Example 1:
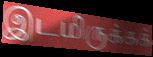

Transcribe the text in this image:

இடமிருக்கக்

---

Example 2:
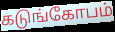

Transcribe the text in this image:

கடுங்கோபம்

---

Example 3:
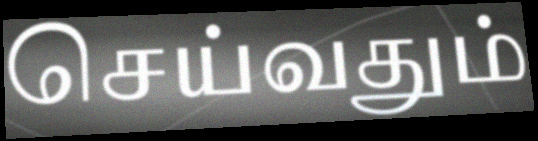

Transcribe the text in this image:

செய்வதும்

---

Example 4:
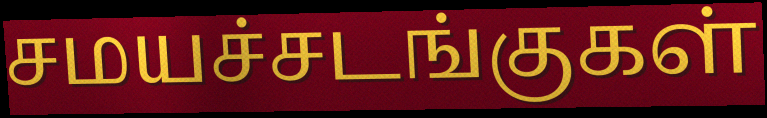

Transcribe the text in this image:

சமயச்சடங்குகள்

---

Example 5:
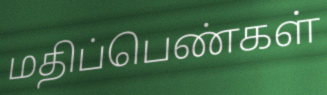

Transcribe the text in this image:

மதிப்பெண்கள்